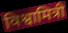
विश्वामित्री